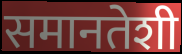
समानतेशी